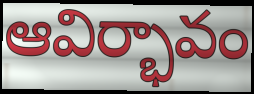
ఆవిర్భావం